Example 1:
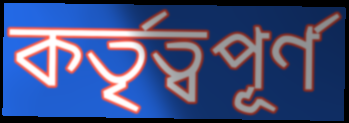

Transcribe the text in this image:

কর্তৃত্বপূর্ণ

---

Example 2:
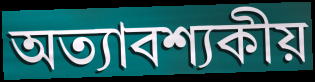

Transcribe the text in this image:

অত্যাবশ্যকীয়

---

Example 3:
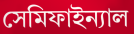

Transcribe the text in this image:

সেমিফাইন্যাল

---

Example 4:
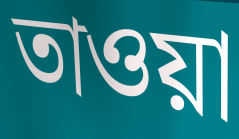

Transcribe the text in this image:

তাওয়া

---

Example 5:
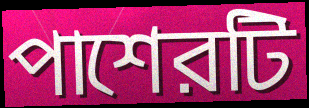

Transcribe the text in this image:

পাশেরটি